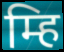
म्हि